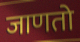
जाणतो